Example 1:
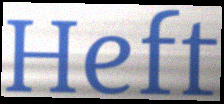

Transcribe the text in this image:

Heft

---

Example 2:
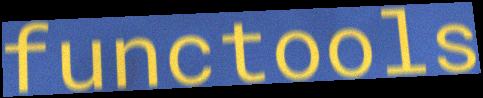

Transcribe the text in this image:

functools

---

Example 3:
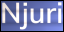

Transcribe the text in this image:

Njuri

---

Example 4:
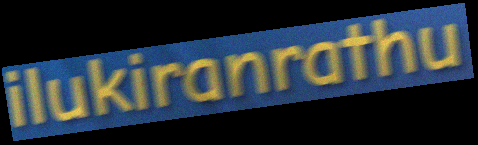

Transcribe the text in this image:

ilukiranrathu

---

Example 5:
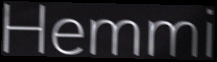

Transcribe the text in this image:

Hemmi